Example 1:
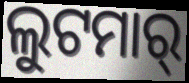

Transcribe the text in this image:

ଲୁଟମାର୍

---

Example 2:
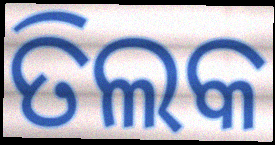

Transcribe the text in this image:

ତିଲକ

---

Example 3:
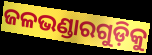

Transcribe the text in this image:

ଜଳଭଣ୍ଡାରଗୁଡ଼ିକୁ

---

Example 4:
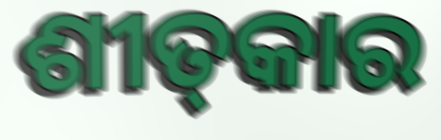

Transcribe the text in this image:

ଶୀତ୍‌କାର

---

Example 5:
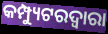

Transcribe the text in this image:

କମ୍ପ୍ୟୁଟରଦ୍ୱାରା